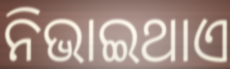
ନିଭାଇଥାଏ